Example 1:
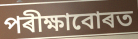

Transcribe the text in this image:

পৰীক্ষাবোৰত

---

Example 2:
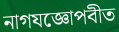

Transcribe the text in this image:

নাগযজ্ঞোপবীত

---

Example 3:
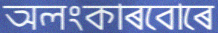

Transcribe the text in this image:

অলংকাৰবোৰে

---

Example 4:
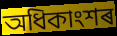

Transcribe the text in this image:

অধিকাংশৰ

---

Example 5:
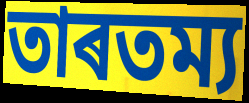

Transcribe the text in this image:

তাৰতম্য